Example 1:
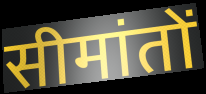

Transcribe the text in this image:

सीमांतों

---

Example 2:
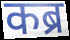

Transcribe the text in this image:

कब्र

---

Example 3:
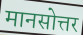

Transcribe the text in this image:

मानसोत्तर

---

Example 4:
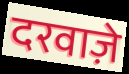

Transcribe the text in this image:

दरवाज़े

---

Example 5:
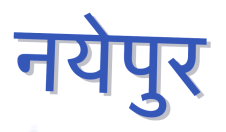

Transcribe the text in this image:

नयेपुर